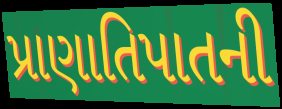
પ્રાણાતિપાતની